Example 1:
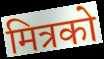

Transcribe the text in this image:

मित्रको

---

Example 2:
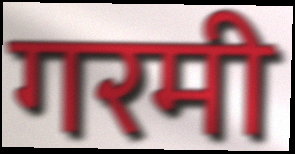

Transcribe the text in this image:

गरमी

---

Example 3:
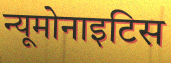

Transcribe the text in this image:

न्यूमोनाइटिस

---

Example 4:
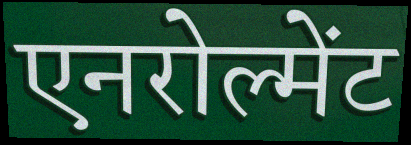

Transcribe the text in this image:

एनरोल्मेंट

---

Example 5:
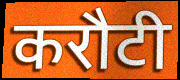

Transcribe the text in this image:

करौटी